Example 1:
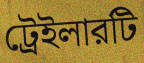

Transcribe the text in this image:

ট্রেইলারটি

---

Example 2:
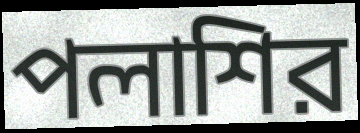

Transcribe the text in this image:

পলাশির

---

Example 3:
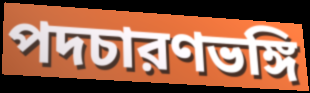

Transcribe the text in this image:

পদচারণভঙ্গি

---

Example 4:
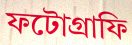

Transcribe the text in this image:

ফটোগ্রাফি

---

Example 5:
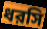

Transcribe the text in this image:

ধরসি